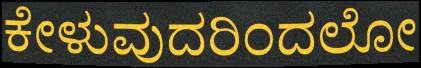
ಕೇಳುವುದರಿಂದಲೋ